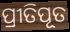
ପ୍ରୀତିପୂତ